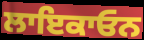
ਲਾਇਕਾਓਨ